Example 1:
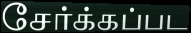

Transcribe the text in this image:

சேர்க்கப்பட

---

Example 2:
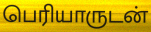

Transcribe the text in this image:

பெரியாருடன்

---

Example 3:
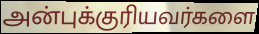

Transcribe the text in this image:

அன்புக்குரியவர்களை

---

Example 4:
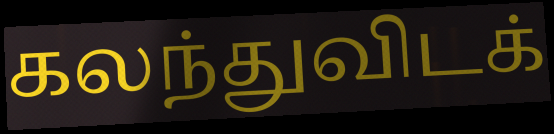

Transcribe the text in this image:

கலந்துவிடக்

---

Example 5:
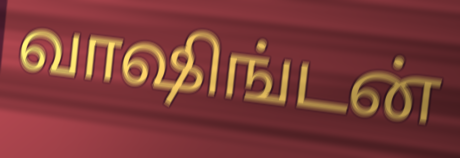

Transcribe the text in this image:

வாஷிங்டன்